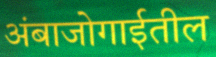
अंबाजोगाईतील